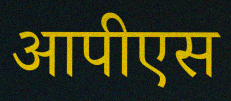
आपीएस